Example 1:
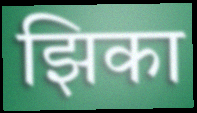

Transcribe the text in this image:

झिका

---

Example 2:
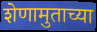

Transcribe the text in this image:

शेणामुताच्या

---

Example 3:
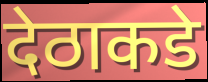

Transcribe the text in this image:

देठाकडे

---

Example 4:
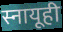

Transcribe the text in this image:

स्नायूही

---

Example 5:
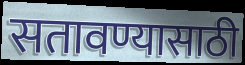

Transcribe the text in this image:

सतावण्यासाठी